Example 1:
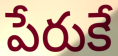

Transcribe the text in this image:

పేరుకే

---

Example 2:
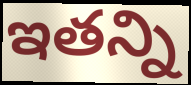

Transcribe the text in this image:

ఇతన్ని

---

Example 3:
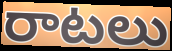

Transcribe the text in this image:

రాటలు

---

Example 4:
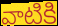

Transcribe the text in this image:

వాటికి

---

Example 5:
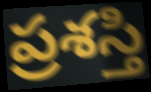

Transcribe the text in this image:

ప్రశస్తి